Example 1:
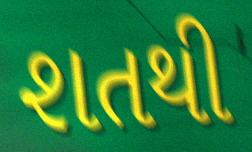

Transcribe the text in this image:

શતથી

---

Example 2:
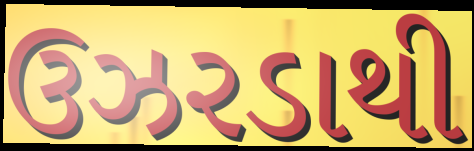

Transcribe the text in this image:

ઉઝરડાથી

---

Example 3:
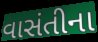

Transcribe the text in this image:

વાસંતીના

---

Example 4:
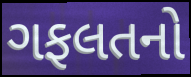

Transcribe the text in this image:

ગફલતનો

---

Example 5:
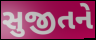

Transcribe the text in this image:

સુજીતને